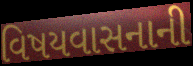
વિષયવાસનાની